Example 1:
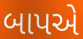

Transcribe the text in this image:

બાપએ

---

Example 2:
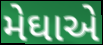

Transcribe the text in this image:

મેઘાએ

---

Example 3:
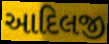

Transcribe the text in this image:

આદિલજી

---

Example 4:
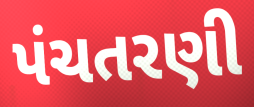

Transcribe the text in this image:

પંચતરણી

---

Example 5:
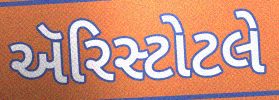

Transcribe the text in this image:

ઍરિસ્ટોટલે